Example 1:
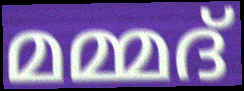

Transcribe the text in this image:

മമ്മദ്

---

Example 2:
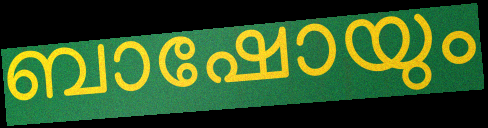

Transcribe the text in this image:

ബാഷോയും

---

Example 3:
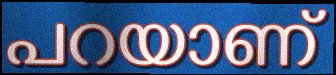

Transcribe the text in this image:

പറയാണ്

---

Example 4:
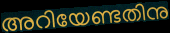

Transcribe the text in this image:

അറിയേണ്ടതിനു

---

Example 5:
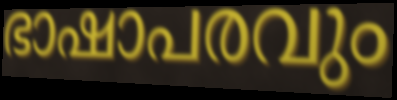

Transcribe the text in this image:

ഭാഷാപരവും